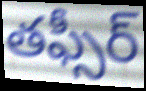
తఫ్సీర్